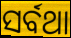
ସର୍ବଥା